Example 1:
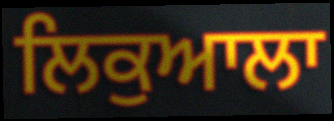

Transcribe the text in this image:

ਲਿਕੁਆਲਾ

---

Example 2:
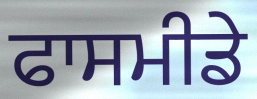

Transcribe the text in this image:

ਫਾਸਮੀਡੇ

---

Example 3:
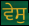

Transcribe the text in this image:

ਵੇਸੁ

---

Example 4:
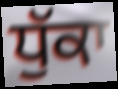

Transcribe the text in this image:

ਧੁੱਕਾ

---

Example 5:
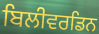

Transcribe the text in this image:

ਬਿਲੀਵਰਡਿਨ